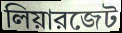
লিয়ারজেট